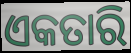
ଏକତାରି